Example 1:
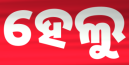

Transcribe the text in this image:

ହେଲୁ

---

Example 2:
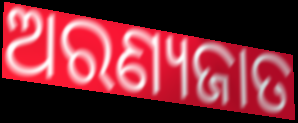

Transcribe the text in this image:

ଅରଣ୍ୟଜାତ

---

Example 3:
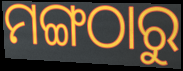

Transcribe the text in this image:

ମଙ୍ଗଠାରୁ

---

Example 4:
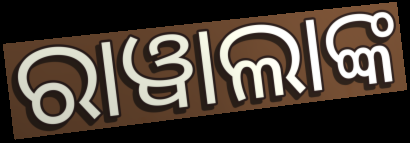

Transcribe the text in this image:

ରାୱାଲାଙ୍କ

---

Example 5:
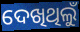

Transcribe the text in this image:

ଦେଖିଥିଲୁଁ